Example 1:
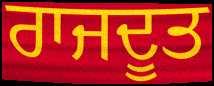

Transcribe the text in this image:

ਰਾਜਦੂਤ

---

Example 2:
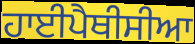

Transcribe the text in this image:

ਹਾਈਪੈਥੀਸੀਆ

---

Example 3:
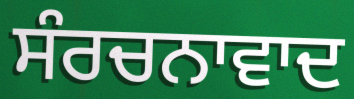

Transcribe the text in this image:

ਸੰਰਚਨਾਵਾਦ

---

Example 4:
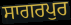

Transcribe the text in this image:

ਸਾਗਰਪੁਰ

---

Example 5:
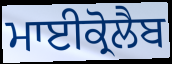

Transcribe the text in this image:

ਮਾਈਕ੍ਰੋਲੈਬ